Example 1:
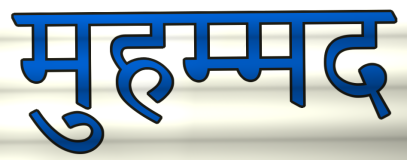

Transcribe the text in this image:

मुहम्मद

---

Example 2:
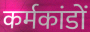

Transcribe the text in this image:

कर्मकांडों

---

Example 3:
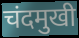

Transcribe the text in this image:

चंदमुखी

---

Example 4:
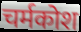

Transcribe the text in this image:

चर्मकोश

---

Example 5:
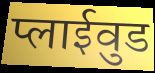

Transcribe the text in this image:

प्लाईवुड